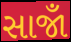
સાજાઁ